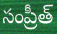
సంప్రీత్